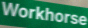
Workhorse